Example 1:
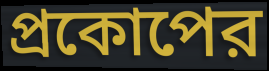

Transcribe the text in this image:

প্রকোপের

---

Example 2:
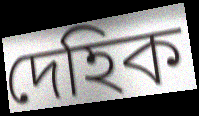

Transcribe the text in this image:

দেহিক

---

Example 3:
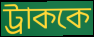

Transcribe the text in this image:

ট্রাককে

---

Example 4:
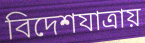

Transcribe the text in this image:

বিদেশযাত্রায়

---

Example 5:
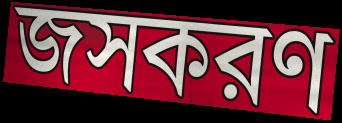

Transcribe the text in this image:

জসকরণ